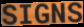
SIGNS